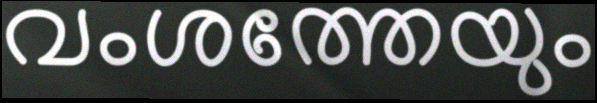
വംശത്തേയും